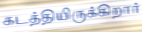
கடத்தியிருக்கிறார்